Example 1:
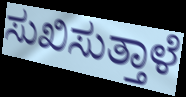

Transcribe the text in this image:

ಸುಖಿಸುತ್ತಾಳೆ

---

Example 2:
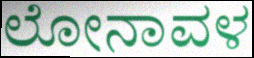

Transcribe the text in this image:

ಲೋನಾವಳ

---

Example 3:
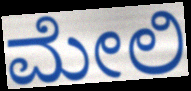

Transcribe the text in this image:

ಮೇಲಿ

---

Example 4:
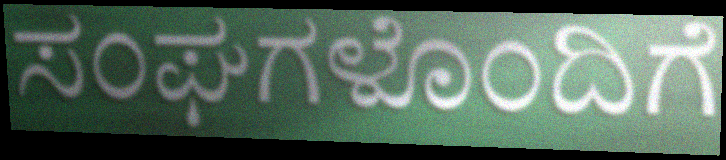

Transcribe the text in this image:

ಸಂಘಗಳೊಂದಿಗೆ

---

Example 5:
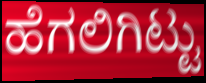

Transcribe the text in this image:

ಹೆಗಲಿಗಿಟ್ಟು